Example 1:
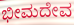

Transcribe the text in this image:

ಭೀಮದೇವ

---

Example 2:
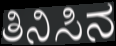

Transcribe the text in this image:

ತಿನಿಸಿನ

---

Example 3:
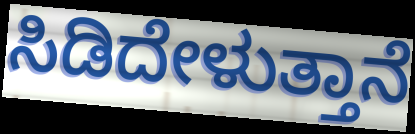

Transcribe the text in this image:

ಸಿಡಿದೇಳುತ್ತಾನೆ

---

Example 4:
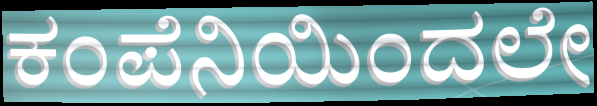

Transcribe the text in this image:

ಕಂಪೆನಿಯಿಂದಲೇ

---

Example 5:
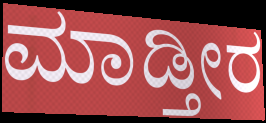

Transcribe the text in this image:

ಮಾಡ್ತೀರ